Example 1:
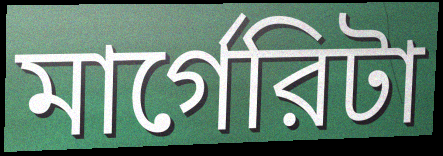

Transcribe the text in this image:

মার্গেরিটা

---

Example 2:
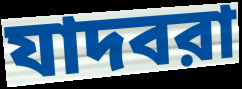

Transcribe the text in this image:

যাদবরা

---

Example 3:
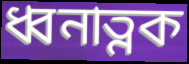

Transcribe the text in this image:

ধ্বনাত্নক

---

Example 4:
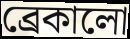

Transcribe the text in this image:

ব্রেকালো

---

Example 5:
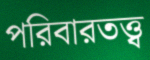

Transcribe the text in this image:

পরিবারতত্ত্ব